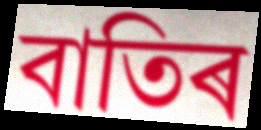
বাতিৰ